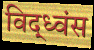
विद्ध्वंस